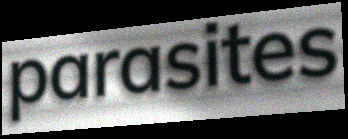
parasites